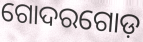
ଗୋଦରଗୋଡ଼